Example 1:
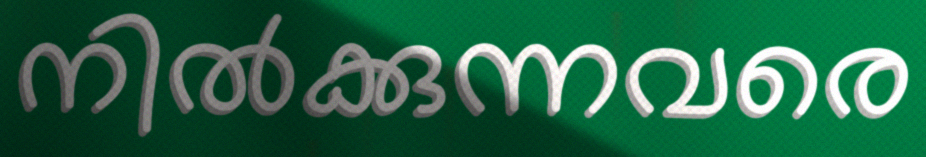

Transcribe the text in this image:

നിൽക്കുന്നവരെ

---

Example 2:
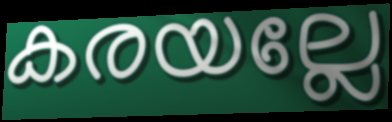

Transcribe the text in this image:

കരയല്ലേ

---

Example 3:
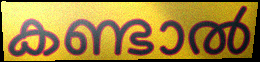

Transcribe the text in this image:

കണ്ടാൽ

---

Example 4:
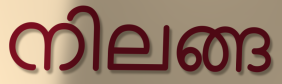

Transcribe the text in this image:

നിലങ്ങ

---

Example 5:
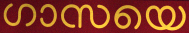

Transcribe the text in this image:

ഗാസയെ